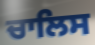
ਚਾਲਿਸ